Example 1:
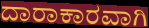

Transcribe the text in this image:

ದಾರಾಕಾರವಾಗಿ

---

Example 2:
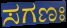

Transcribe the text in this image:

ಸಗಣಃ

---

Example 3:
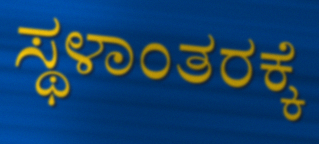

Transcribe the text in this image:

ಸ್ಥಳಾಂತರಕ್ಕೆ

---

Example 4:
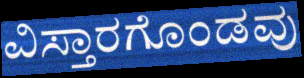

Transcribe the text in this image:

ವಿಸ್ತಾರಗೊಂಡವು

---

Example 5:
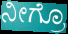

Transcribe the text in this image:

ನೀಗ್ರೊ